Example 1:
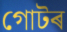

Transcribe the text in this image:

গোটৰ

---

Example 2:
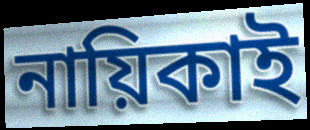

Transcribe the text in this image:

নায়িকাই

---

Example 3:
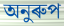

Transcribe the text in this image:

অনুৰুপ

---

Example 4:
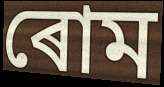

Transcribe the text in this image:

ৰোম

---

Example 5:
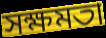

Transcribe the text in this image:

সক্ষমতা